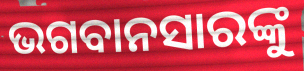
ଭଗବାନସାରଙ୍କୁ